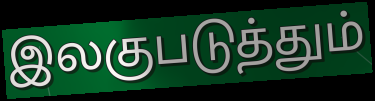
இலகுபடுத்தும்